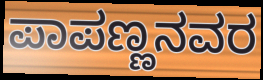
ಪಾಪಣ್ಣನವರ